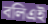
বলিএই